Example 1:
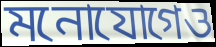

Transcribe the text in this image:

মনোযোগেও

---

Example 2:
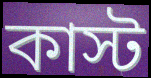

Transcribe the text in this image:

কাস্ট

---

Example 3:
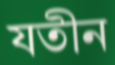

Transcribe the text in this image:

যতীন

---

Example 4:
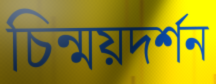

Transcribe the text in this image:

চিন্ময়দর্শন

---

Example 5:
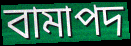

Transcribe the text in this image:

বামাপদ